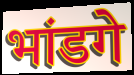
भांडगे